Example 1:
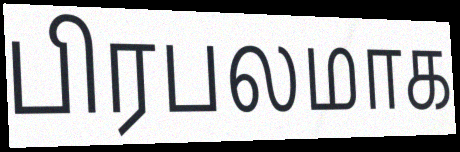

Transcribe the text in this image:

பிரபலமாக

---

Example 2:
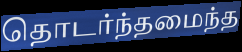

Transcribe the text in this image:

தொடர்ந்தமைந்த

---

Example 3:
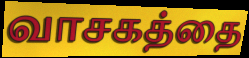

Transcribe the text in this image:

வாசகத்தை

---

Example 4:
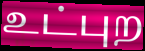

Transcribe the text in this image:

உட்புற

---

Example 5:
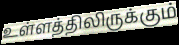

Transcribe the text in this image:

உள்ளத்திலிருக்கும்